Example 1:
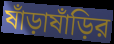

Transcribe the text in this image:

ষাঁড়াষাঁড়ির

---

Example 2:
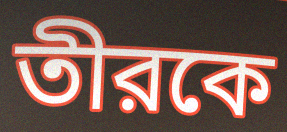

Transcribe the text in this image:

তীরকে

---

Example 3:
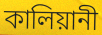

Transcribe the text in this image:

কালিয়ানী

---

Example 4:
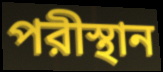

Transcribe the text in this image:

পরীস্থান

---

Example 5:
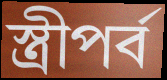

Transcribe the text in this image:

স্ত্রীপর্ব